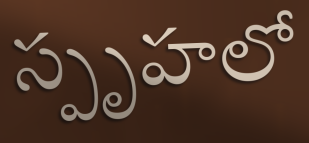
స్పృహలో